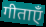
गीताएँ